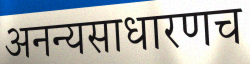
अनन्यसाधारणच